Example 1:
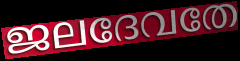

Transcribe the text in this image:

ജലദേവതേ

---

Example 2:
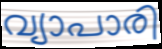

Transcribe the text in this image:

വ്യാപാരി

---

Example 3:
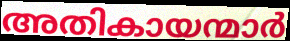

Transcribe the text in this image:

അതികായന്മാർ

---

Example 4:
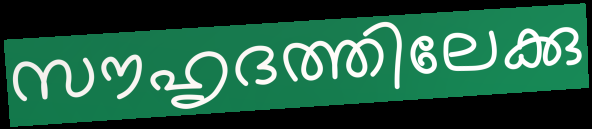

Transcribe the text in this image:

സൗഹൃദത്തിലേക്കു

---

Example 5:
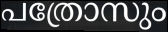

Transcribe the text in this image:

പത്രോസും